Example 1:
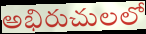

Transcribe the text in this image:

అభిరుచులలో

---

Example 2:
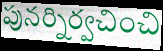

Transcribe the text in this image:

పునర్నిర్వచించి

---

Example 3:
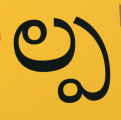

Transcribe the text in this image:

ల్ప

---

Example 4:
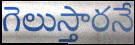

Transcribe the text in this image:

గెలుస్తారనే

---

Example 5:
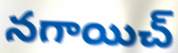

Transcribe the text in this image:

నగాయిచ్